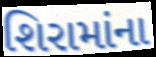
શિરામાંના